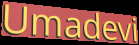
Umadevi